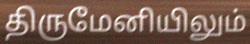
திருமேனியிலும்